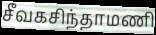
சீவகசிந்தாமணி